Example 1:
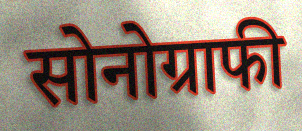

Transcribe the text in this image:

सोनोग्राफी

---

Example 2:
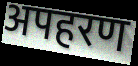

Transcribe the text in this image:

अपहरण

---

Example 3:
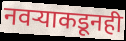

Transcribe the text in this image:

नवऱ्याकडूनही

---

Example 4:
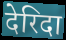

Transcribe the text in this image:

देरिदा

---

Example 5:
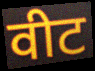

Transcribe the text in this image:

वीट